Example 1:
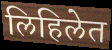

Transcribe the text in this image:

लिहिलेत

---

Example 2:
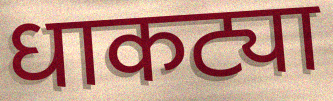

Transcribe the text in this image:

धाकट्या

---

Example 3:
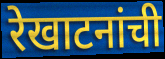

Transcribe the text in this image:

रेखाटनांची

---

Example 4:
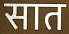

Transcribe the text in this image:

सात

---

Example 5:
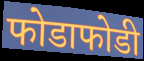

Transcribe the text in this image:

फोडाफोडी